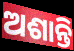
ଅଶାନ୍ତି